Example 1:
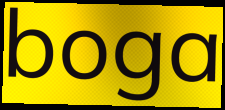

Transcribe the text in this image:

boga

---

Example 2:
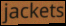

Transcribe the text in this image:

jackets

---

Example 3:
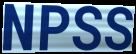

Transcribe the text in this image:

NPSS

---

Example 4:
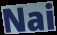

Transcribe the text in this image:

Nai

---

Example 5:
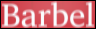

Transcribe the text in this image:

Barbel